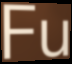
Fu